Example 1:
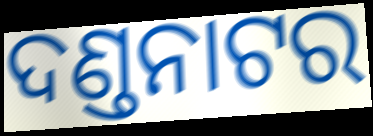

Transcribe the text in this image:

ଦଣ୍ଡନାଟର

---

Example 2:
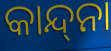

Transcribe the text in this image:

କାନ୍ଦ୍‌ନା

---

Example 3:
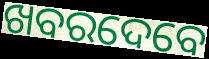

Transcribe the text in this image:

ଖବରଦେବେ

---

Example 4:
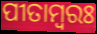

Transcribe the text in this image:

ପୀତାମ୍ୱରଃ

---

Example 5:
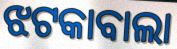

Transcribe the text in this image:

ଝଟକାବାଲା